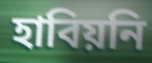
হাবিয়নি